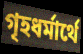
গৃহধর্মার্থে